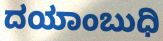
ದಯಾಂಬುಧಿ